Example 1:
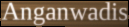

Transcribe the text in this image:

Anganwadis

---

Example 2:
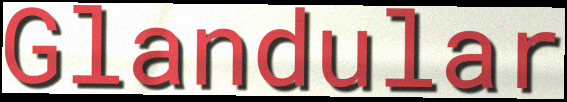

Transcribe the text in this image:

Glandular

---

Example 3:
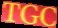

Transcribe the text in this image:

TGC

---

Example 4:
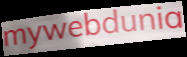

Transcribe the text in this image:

mywebdunia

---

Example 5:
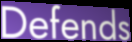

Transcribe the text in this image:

Defends